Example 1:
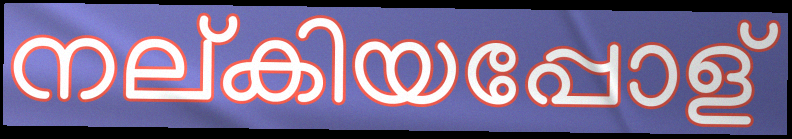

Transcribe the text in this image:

നല്കിയപ്പോള്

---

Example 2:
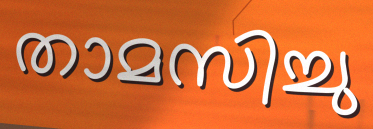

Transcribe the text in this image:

താമസിച്ചു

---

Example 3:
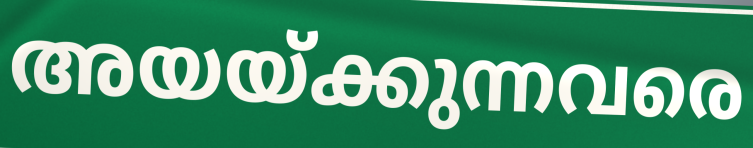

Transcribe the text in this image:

അയയ്ക്കുന്നവരെ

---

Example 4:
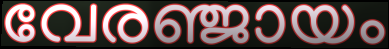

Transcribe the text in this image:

വേരഞ്ജായം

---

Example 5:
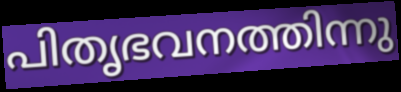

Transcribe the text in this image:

പിതൃഭവനത്തിന്നു